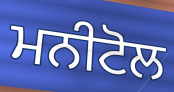
ਮਨੀਟੋਲ